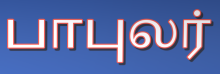
பாபுலர்